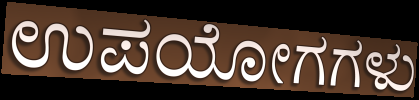
ಉಪಯೋಗಗಳು